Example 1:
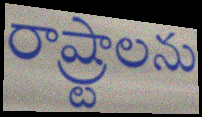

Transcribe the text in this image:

రాష్ర్టాలను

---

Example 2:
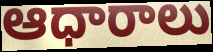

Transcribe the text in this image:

ఆధారాలు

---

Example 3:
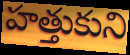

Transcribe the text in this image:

హత్తుకుని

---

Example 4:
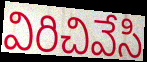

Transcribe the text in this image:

విరిచివేసి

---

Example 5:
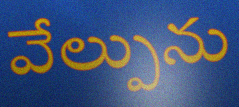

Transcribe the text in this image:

వేల్పును